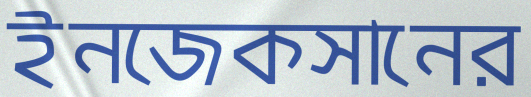
ইনজেকসানের